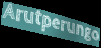
Arutperungo